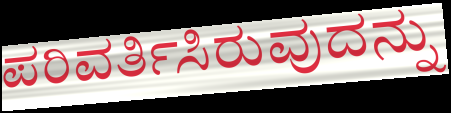
ಪರಿವರ್ತಿಸಿರುವುದನ್ನು